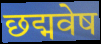
छद्मवेष